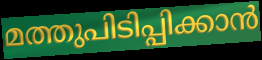
മത്തുപിടിപ്പിക്കാൻ